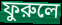
ফুরুলে